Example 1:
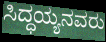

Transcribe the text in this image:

ಸಿದ್ಧಯ್ಯನವರು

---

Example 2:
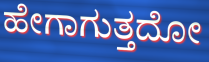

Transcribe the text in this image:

ಹೇಗಾಗುತ್ತದೋ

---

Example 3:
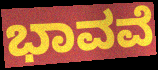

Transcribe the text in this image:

ಭಾವವೆ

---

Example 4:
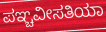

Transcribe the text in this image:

ಪಞ್ಚವೀಸತಿಯಾ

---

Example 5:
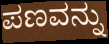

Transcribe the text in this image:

ಪಣವನ್ನು